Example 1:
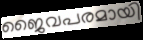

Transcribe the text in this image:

ജൈവപരമായി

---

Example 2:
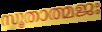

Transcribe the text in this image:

സൂതാത്മജഃ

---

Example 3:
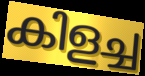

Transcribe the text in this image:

കിളച്ച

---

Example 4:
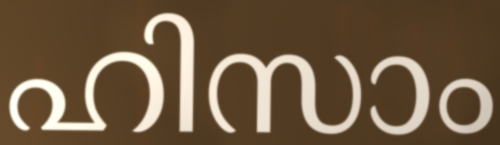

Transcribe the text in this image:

ഹിസാം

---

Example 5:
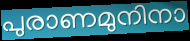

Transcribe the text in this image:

പുരാണമുനിനാ